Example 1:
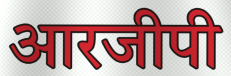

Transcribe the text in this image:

आरजीपी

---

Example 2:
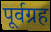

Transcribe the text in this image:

पूर्वग्रह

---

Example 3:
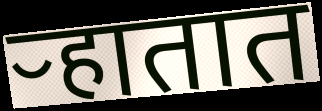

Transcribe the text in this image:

ऱ्हातात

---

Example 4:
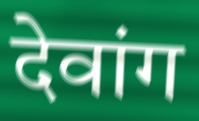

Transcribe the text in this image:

देवांग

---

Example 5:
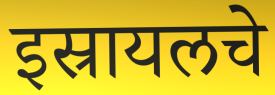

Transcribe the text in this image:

इस्रायलचे